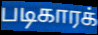
படிகாரக்